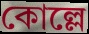
কোল্লে